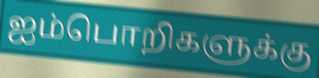
ஐம்பொறிகளுக்கு